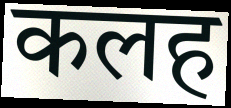
कलह